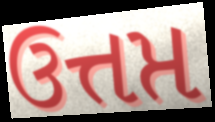
ઉત્તપ્ત